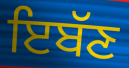
ਇਬੱਣ